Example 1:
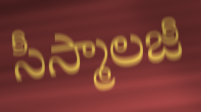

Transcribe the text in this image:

సీస్మాలజీ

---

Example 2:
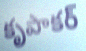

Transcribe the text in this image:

కృపాకర్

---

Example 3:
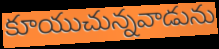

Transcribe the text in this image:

కూయుచున్నవాడును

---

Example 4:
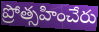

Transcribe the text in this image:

ప్రోత్సహించేరు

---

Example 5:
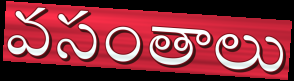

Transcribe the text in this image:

వసంతాలు